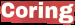
Coring